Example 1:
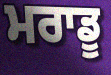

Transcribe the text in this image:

ਮਰਾਡੂ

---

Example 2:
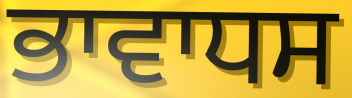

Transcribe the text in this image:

ਭਾਵਾਧਸ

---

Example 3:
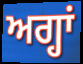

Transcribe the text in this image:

ਅਗ੍ਹਾਂ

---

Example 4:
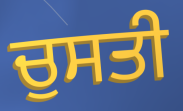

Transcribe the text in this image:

ਚੁਸਤੀ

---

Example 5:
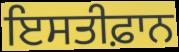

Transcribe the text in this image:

ਇਸਤੀਫ਼ਾਨ